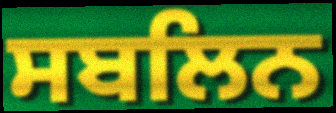
ਸਬਲਿਨ